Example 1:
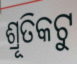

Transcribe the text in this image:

ଶ୍ରୂତିକଟୁ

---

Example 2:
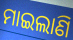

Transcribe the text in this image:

ମାଇଲାଣି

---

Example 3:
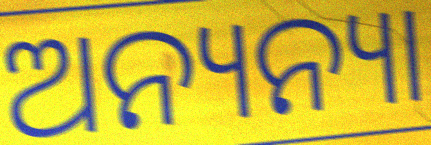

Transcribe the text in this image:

ଅନ୍ୟନ୍ୟା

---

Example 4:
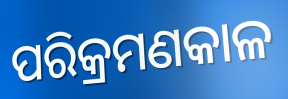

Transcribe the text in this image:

ପରିକ୍ରମଣକାଳ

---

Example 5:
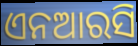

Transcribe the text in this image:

ଏନଆରସି